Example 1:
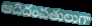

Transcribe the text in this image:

ఆదిదంపతులుగా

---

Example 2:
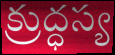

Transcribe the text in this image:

క్రుద్ధస్య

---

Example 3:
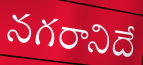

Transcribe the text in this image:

నగరానిదే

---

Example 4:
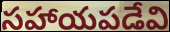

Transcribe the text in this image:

సహాయపడేవి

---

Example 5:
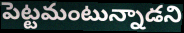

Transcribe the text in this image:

పెట్టమంటున్నాడని